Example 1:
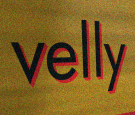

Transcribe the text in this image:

velly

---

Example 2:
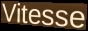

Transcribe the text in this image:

Vitesse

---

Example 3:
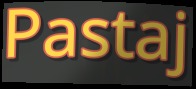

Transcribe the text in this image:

Pastaj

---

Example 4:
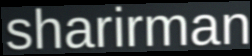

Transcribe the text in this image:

sharirman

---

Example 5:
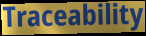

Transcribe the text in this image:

Traceability